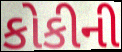
કોકીની